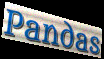
Pandas